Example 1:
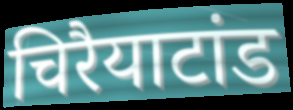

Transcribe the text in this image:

चिरैयाटांड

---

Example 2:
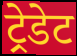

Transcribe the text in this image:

ट्रेडेट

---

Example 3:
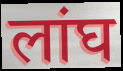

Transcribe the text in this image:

लांघ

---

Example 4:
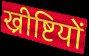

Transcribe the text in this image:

ख्रीष्टियों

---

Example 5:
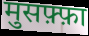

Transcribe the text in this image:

मुसफ़्फ़ा